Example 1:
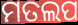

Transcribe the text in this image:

ମତଲପ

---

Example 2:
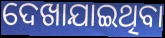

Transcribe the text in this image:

ଦେଖାଯାଇଥିବା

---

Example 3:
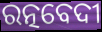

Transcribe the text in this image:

ରତ୍ନବେଦୀ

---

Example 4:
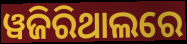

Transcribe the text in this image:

ୱଜିରିଥାଲରେ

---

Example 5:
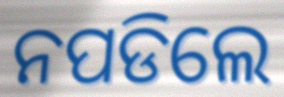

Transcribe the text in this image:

ନପଡିଲେ